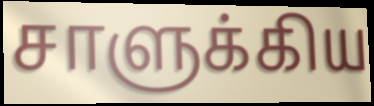
சாளுக்கிய